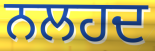
ਨਲਹਦ